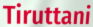
Tiruttani